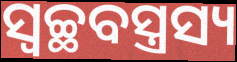
ସ୍ଵଚ୍ଛବସ୍ତ୍ରସ୍ୟ